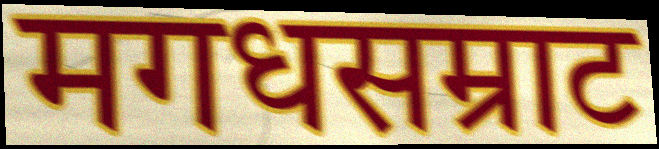
मगधसम्राट